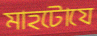
মাহটোযে